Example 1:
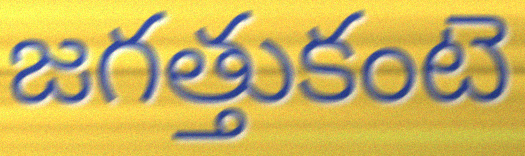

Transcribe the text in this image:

జగత్తుకంటె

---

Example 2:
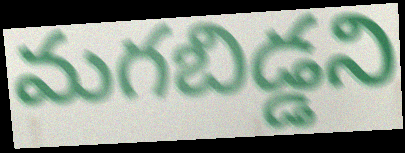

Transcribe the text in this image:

మగబిడ్డని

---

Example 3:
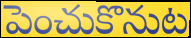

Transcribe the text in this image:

పెంచుకొనుట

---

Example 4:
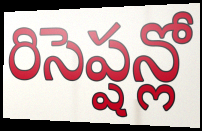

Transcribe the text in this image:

రిసెప్షన్లో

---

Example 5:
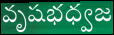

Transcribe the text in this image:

వృషభధ్వజ